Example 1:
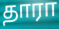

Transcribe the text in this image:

தாரா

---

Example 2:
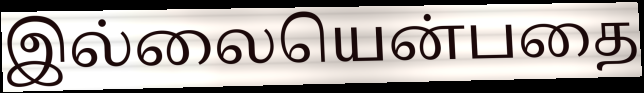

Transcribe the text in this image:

இல்லையென்பதை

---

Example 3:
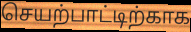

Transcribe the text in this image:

செயற்பாட்டிற்காக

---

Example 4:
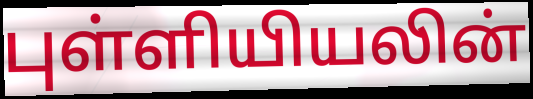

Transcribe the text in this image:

புள்ளியியலின்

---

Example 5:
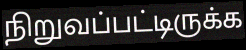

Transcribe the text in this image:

நிறுவப்பட்டிருக்க